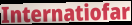
Internatiofar